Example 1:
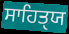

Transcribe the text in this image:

ਸਾਹਿਤੑਯ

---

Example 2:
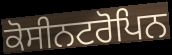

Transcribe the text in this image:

ਕੋਸੀਨਟਰੋਪਿਨ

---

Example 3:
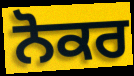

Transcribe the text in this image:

ਨੋਕਰ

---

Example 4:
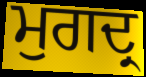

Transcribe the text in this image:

ਮੁਗਦ੍ਰ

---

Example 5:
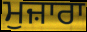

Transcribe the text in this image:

ਮੁਜ਼ਾਰਾ